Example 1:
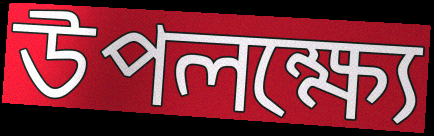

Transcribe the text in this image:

উপলক্ষ্যে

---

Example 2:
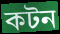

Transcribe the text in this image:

কটন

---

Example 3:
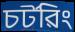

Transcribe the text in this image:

চৰ্টৱিং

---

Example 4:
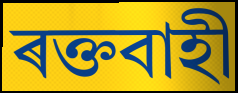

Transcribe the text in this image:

ৰক্তবাহী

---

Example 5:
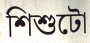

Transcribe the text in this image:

শিশুটো